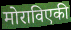
मोराविएकी